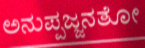
ಅನುಪ್ಪಜ್ಜನತೋ